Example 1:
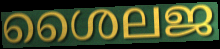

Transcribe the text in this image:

ശൈലജ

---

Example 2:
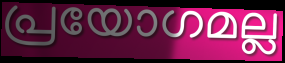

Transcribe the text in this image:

പ്രയോഗമല്ല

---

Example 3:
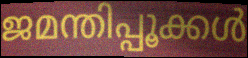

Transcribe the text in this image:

ജമന്തിപ്പൂക്കൾ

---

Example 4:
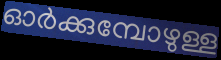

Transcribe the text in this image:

ഓർക്കുമ്പോഴുള്ള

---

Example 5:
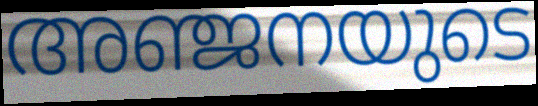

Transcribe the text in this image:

അഞ്ജനയുടെ